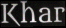
Khar